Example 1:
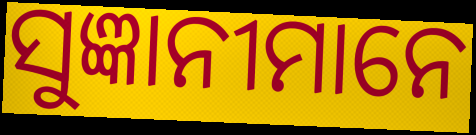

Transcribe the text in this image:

ସୁଜ୍ଞାନୀମାନେ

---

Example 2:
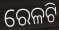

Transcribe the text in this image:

ରେଳଟି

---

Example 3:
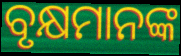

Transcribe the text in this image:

ବୃକ୍ଷମାନଙ୍କ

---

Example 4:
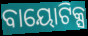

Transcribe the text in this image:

ବାୟୋଟିକ୍ସ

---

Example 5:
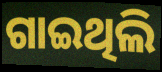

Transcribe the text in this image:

ଗାଇଥିଲି